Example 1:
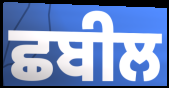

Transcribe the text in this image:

ਛਬੀਲ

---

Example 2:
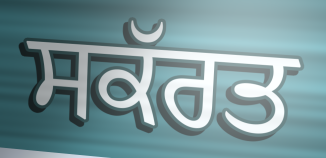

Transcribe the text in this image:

ਸਕੱਰਤ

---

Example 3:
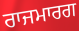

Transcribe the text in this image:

ਰਾਜਮਾਰਗ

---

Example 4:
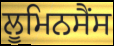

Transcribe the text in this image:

ਲੂਮਿਨਸੈਂਸ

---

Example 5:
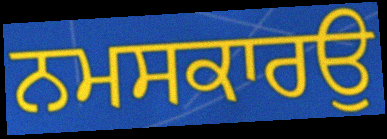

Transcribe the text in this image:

ਨਮਸਕਾਰਉ